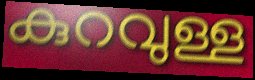
കുറവുള്ള